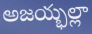
అజయ్భల్లా